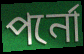
পর্নো